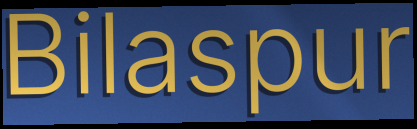
Bilaspur